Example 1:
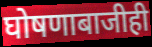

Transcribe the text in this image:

घोषणाबाजीही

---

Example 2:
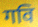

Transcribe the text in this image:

गवि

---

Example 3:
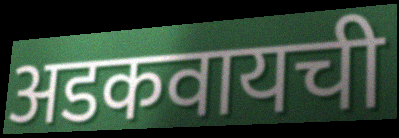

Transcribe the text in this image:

अडकवायची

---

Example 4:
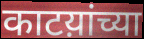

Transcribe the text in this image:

काटय़ांच्या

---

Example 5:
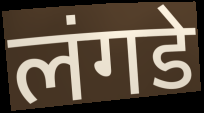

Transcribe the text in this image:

लंगडे